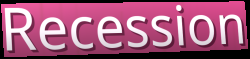
Recession